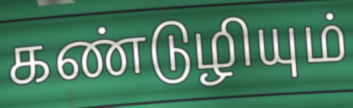
கண்டுழியும்